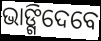
ଭାଙ୍ଗିଦେବେ